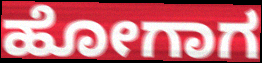
ಹೋಗಾಗ